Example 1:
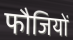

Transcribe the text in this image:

फौजियों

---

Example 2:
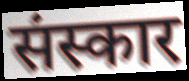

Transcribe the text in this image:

संस्‍कार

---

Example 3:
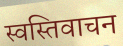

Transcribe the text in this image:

स्वस्तिवाचन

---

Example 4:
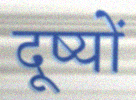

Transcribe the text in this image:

दूष्यों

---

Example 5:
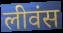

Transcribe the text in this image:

लीवंस